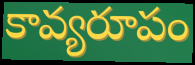
కావ్యరూపం